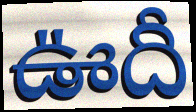
ఊదీ